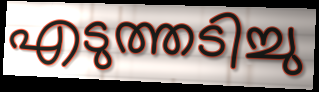
എടുത്തടിച്ചു